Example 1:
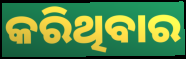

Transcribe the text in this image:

କରିଥିବାର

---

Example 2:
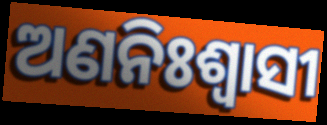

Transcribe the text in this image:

ଅଣନିଃଶ୍ଵାସୀ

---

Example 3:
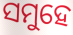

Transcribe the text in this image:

ସମୁହେ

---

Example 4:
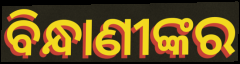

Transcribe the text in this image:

ବିନ୍ଧାଣୀଙ୍କର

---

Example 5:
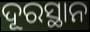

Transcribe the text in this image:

ଦୂରସ୍ଥାନ